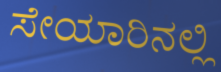
ಸೇಯಾರಿನಲ್ಲಿ